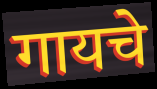
गायचे